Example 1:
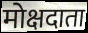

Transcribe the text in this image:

मोक्षदाता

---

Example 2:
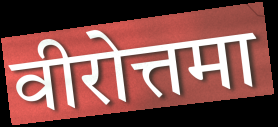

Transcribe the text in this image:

वीरोत्तमा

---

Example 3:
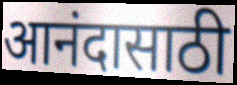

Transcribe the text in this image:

आनंदासाठी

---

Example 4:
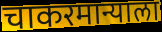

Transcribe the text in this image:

चाकरमान्याला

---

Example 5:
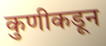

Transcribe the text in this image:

कुणीकडून